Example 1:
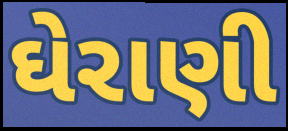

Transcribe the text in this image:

ઘેરાણી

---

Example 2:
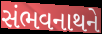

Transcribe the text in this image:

સંભવનાથને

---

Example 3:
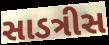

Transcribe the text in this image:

સાડત્રીસ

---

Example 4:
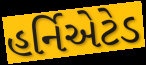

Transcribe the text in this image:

હર્નિએટેડ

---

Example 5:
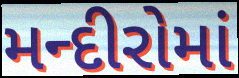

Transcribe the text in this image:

મન્દીરોમાં